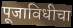
पूजाविधीचा